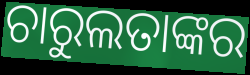
ଚାରୁଲତାଙ୍କର